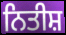
ਨਿਤੀਸ਼